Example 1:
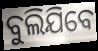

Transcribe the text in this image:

ବୁଲିଯିବେ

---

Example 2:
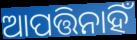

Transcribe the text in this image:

ଆପତ୍ତିନାହିଁ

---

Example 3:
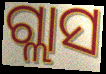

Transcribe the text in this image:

ଗ୍ଲାସ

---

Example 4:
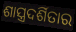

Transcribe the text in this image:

ଶାସ୍ତ୍ରଦର୍ଶିତାର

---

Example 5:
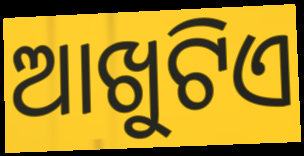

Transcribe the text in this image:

ଆଖୁଟିଏ